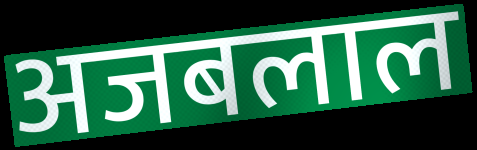
अजबलाल